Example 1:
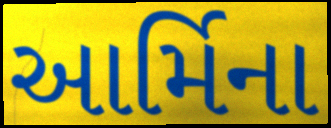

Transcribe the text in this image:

આર્મિના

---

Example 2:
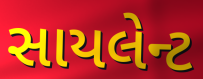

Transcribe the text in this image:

સાયલેન્ટ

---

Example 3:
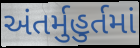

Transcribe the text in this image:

અંતર્મુહુર્તમાં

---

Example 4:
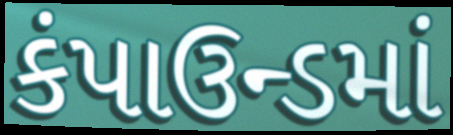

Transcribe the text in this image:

કંપાઉન્ડમાં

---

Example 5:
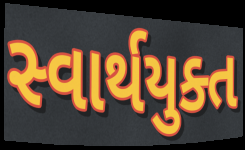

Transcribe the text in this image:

સ્વાર્થયુક્ત